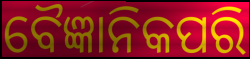
ବୈଜ୍ଞାନିକପରି